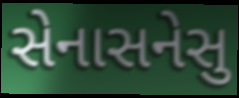
સેનાસનેસુ